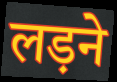
लड़ने